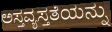
ಅಸ್ತವ್ಯಸ್ತತೆಯನ್ನು